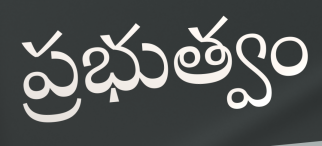
ప్రభుత్వం